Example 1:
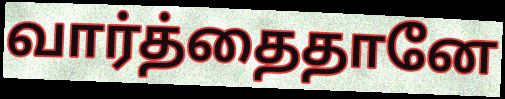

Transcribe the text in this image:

வார்த்தைதானே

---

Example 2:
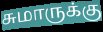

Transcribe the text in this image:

சுமாருக்கு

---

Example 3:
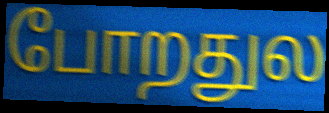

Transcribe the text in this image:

போறதுல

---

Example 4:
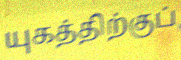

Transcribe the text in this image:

யுகத்திற்குப்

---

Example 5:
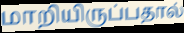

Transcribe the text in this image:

மாறியிருப்பதால்